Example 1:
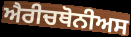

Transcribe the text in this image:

ਐਰੀਚਥੋਨੀਅਸ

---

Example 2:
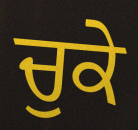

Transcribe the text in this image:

ਚੁਕੇ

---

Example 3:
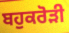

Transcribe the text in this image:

ਬਹੁਕਰੋੜੀ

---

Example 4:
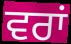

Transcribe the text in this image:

ਵਰਾਂ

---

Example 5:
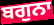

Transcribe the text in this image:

ਬਗੁਨਾ